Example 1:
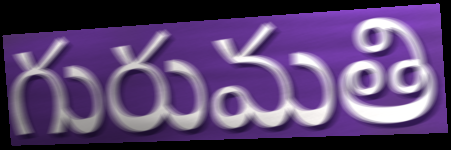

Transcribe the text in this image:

గురుమతి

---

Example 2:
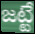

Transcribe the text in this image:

జట్టే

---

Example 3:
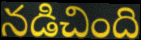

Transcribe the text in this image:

నడిచింది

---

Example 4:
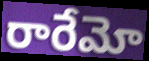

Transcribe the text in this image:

రారేమో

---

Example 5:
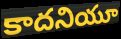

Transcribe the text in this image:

కాదనియూ